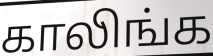
காலிங்க